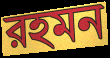
রহমন